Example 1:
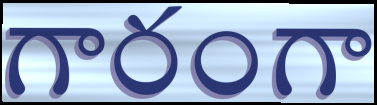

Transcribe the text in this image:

గారంగా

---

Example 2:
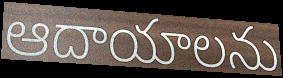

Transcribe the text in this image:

ఆదాయాలను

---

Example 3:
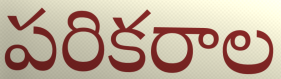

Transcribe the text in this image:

పరికరాల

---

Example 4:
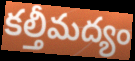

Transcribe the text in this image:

కల్తీమద్యం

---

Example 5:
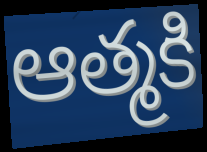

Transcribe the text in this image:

ఆత్మకి